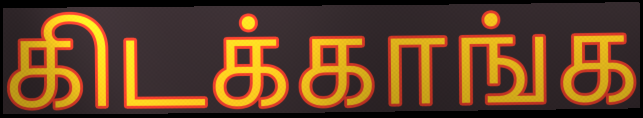
கிடக்காங்க